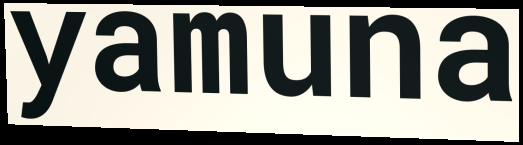
yamuna